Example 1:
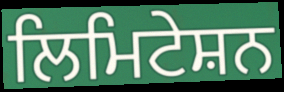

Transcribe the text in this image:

ਲਿਮਿਟੇਸ਼ਨ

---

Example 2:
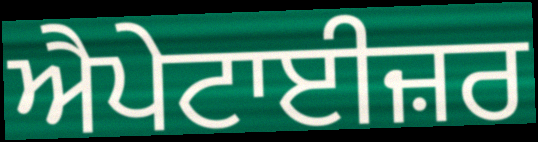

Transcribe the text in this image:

ਐਪੇਟਾਈਜ਼ਰ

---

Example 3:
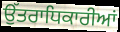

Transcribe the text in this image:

ਉੱਤਰਾਧਿਕਾਰੀਆਂ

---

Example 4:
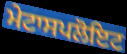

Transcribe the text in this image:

ਮੇਟਾਸਪਲੋਇਟ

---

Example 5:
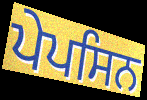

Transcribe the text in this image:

ਪੇਪਸਿਨ